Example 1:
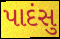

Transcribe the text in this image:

પાદંસુ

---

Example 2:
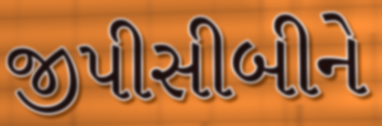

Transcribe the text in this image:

જીપીસીબીને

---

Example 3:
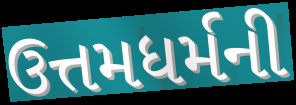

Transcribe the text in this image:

ઉત્તમધર્મની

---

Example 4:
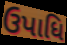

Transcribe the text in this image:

ઉપાધિ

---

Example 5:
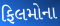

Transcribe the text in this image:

ફિલમોના